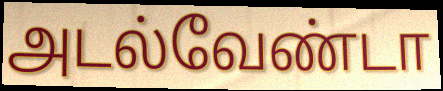
அடல்வேண்டா